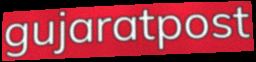
gujaratpost